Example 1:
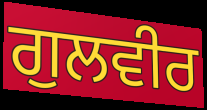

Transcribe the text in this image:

ਗੁਲਵੀਰ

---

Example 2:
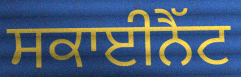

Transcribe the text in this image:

ਸਕਾਈਨੈੱਟ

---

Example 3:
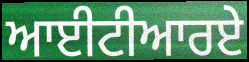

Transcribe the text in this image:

ਆਈਟੀਆਰਏ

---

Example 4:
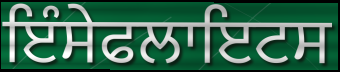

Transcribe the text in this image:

ਇੰਸੇਫਲਾਇਟਸ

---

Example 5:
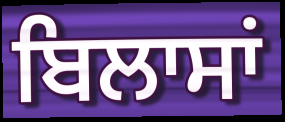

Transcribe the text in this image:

ਬਿਲਾਸਾਂ